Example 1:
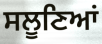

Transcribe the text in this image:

ਸਲੂਣਿਆਂ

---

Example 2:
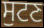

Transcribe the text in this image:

ਸੁਟਣ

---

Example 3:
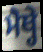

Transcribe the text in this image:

ਮੈਥ੍ਹੇ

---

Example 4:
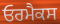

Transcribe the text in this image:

ਓਰਮੈਕਸ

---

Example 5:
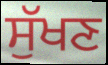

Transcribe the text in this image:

ਸੁੱਖਣ